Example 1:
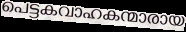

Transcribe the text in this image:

പെട്ടകവാഹകന്മാരായ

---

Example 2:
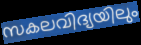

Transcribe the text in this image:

സകലവിദ്യയിലും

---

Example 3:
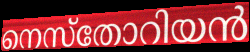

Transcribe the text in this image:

നെസ്തോറിയൻ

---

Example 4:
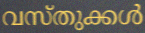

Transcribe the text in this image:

വസ്തുക്കൾ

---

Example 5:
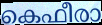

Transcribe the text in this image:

കെഫീരാ